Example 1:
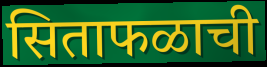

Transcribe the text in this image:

सिताफळाची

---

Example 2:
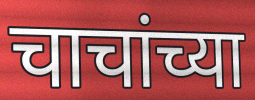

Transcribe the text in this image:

चाचांच्या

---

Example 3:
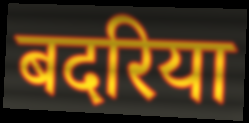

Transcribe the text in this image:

बदरिया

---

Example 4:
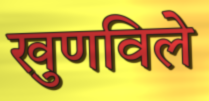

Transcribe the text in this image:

खुणविले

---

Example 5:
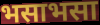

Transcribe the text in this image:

भसाभसा